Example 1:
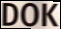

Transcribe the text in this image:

DOK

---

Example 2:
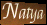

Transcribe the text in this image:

Natya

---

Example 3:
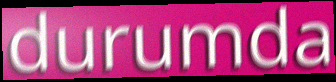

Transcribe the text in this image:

durumda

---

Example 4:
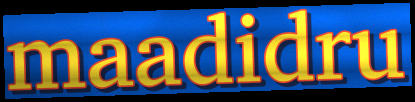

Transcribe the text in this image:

maadidru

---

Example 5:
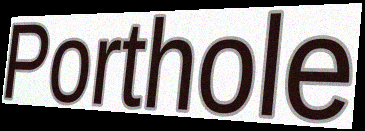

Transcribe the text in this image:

Porthole